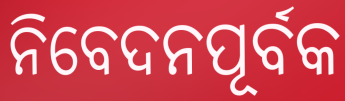
ନିବେଦନପୂର୍ବକ